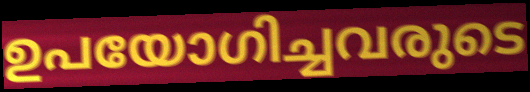
ഉപയോഗിച്ചവരുടെ